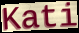
Kati